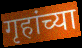
गृहांच्या